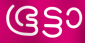
ഭൂട്ടാ